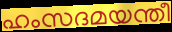
ഹംസദമയന്തീ